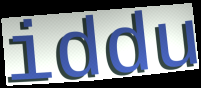
iddu